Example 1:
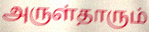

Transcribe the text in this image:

அருள்தாரும்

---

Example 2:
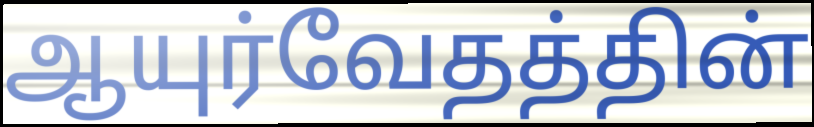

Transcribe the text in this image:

ஆயுர்வேதத்தின்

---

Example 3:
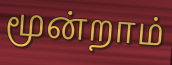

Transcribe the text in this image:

மூன்றாம்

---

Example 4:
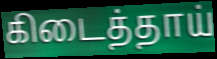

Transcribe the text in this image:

கிடைத்தாய்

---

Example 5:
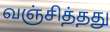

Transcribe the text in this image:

வஞ்சித்தது